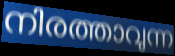
നിരത്താവുന്ന